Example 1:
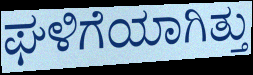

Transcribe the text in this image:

ಘಳಿಗೆಯಾಗಿತ್ತು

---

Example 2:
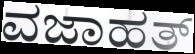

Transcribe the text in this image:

ವಜಾಹತ್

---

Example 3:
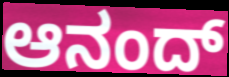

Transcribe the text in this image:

ಆನಂದ್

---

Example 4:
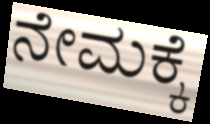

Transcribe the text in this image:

ನೇಮಕ್ಕೆ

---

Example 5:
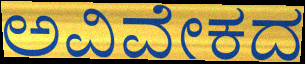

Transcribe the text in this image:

ಅವಿವೇಕದ